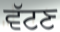
ਵੱਟਣ